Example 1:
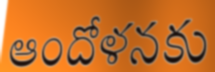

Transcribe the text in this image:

ఆందోళనకు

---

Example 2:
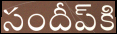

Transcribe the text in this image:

సందీప్‌కి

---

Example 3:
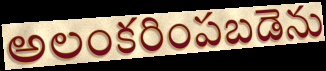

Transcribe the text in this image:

అలంకరింపబడెను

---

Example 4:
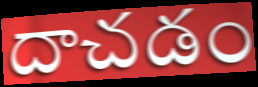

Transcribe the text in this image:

దాచడం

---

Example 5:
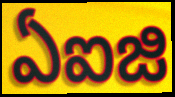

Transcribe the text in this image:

ఏఐజి